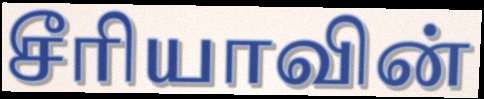
சீரியாவின்